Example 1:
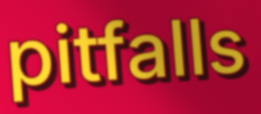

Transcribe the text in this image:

pitfalls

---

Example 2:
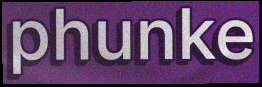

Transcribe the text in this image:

phunke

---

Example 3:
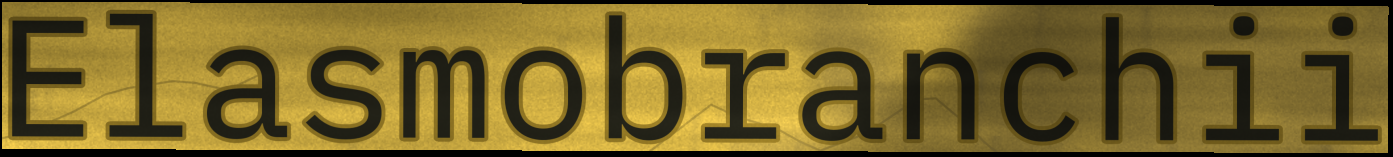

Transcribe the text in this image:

Elasmobranchii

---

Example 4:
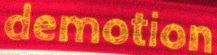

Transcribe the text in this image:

demotion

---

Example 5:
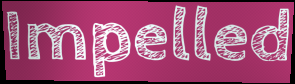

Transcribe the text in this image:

Impelled